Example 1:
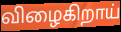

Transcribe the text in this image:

விழைகிறாய்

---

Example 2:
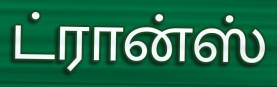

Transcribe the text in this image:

ட்ரான்ஸ்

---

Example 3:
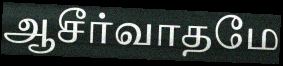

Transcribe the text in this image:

ஆசீர்வாதமே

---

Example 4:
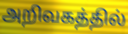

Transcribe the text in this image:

அறிவகத்தில்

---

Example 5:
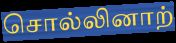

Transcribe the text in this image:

சொல்லினாற்